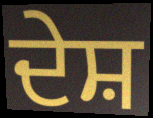
ਦੇਸ਼